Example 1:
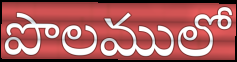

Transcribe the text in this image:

పొలములో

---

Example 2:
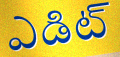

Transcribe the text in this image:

ఎడిట్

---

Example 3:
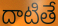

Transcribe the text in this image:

దాటితే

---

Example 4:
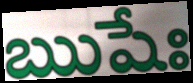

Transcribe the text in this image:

ఋషేః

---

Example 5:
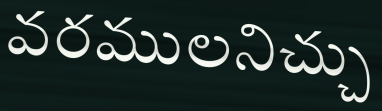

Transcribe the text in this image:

వరములనిచ్చు